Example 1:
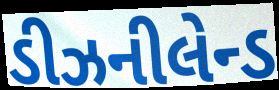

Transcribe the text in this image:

ડીઝનીલેન્ડ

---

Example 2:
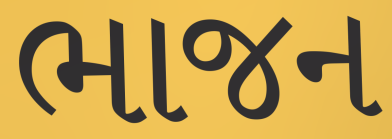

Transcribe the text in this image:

ભાજન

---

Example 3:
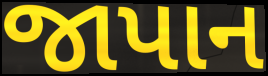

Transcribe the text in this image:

જાપાન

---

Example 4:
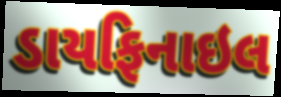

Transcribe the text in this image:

ડાયફિનાઇલ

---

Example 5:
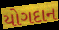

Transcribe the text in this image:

યોગદાન